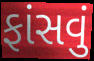
ફાંસવું